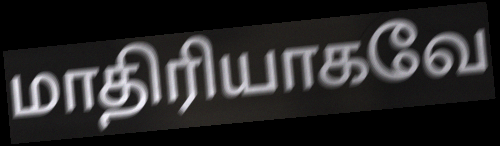
மாதிரியாகவே